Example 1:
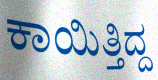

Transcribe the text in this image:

ಕಾಯಿತ್ತಿದ್ದ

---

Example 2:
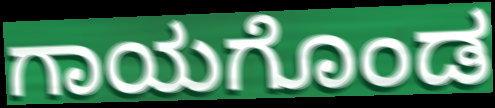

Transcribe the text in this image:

ಗಾಯಗೊಂಡ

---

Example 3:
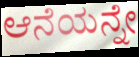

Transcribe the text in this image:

ಆನೆಯನ್ನೇ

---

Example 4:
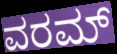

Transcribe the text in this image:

ವರಮ್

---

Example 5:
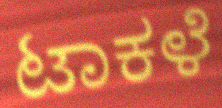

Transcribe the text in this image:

ಟಾಕಳೆ